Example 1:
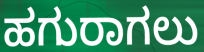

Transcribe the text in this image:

ಹಗುರಾಗಲು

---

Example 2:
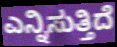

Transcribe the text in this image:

ಎನ್ನಿಸುತ್ತಿದೆ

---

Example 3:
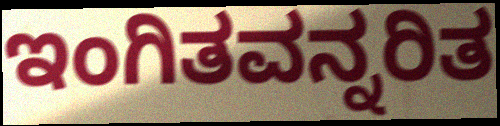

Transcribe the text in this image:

ಇಂಗಿತವನ್ನರಿತ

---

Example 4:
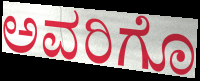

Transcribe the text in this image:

ಅವರಿಗೊ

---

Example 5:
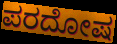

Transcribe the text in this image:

ಪರದೋಷ